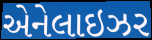
એનેલાઇઝર